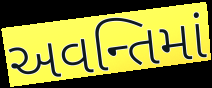
અવન્તિમાં